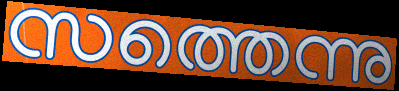
സത്തെന്നു